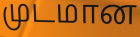
முடமான